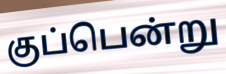
குப்பென்று